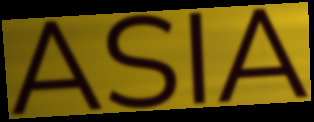
ASIA